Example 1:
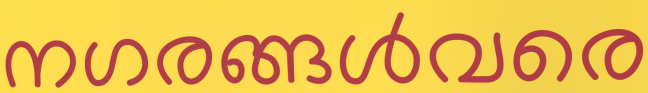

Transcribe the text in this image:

നഗരങ്ങൾവരെ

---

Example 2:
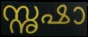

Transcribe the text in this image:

സ്നുഷാ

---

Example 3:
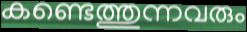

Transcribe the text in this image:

കണ്ടെത്തുന്നവരും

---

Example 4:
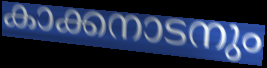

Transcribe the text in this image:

കാക്കനാടനും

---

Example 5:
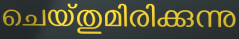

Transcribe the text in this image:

ചെയ്തുമിരിക്കുന്നു